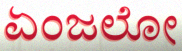
ಏಂಜಲೋ